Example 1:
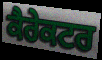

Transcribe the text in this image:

ਕੈਰੇਕਟਰ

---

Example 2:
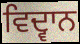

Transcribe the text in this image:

ਵਿਦ੍ਵਾਨ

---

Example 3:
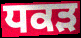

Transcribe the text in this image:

ਧਕੜ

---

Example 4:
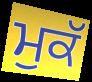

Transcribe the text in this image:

ਮੁਕੱ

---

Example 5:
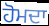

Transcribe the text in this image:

ਹੋਮਦਾ